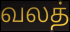
வலத்